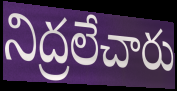
నిద్రలేచారు